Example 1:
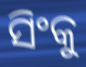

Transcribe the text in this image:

ସିଂକୁ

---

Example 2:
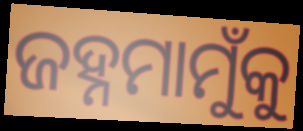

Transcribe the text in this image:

ଜହ୍ନମାମୁଁକୁ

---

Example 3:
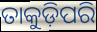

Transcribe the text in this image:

ତାକୁଡ଼ିପରି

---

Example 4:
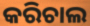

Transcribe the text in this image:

କରିଚାଲ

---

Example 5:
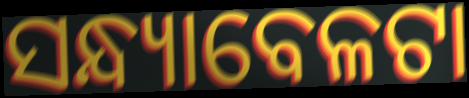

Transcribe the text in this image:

ସନ୍ଧ୍ୟାବେଳଟା